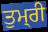
ਤੁਮ੍‍ਰੀ